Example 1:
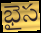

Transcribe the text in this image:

భైస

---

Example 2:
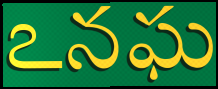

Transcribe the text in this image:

ఽనఘ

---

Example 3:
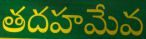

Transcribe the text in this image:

తదహమేవ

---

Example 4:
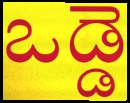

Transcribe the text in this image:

ఒడ్డె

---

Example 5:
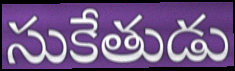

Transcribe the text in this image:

సుకేతుడు